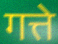
गत्ते